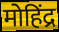
मोहिंद्र